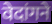
वेदांगने